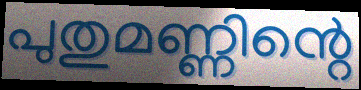
പുതുമണ്ണിന്റെ